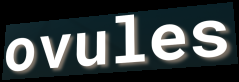
ovules